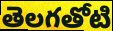
తెలగతోటి